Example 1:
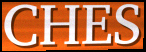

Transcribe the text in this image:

CHES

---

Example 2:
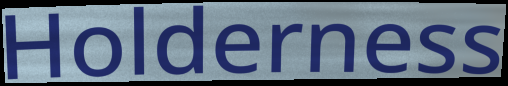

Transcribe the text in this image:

Holderness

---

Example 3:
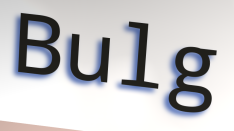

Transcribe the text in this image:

Bulg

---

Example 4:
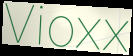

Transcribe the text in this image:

Vioxx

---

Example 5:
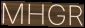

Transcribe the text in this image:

MHGR